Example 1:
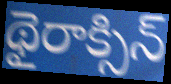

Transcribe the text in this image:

థైరాక్సిన్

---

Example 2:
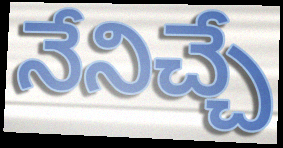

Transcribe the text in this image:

నేనిచ్చే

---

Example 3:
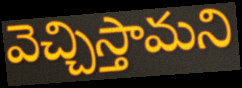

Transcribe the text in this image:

వెచ్చిస్తామని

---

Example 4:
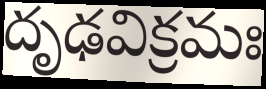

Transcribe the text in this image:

దృఢవిక్రమః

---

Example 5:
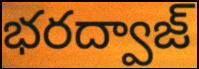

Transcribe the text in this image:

భరద్వాజ్